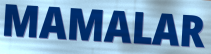
MAMALAR